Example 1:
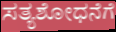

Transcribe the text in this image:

ಸತ್ಯಶೋಧನೆಗೆ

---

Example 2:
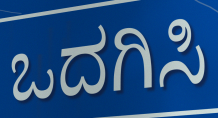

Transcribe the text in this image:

ಒದಗಿಸಿ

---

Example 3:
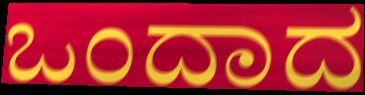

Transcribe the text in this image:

ಒಂದಾದ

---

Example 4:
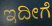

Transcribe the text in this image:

ಇದೀಗೆ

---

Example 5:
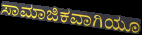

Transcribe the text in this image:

ಸಾಮಾಜಿಕವಾಗಿಯೂ